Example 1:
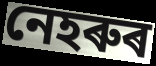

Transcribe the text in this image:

নেহৰুৰ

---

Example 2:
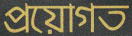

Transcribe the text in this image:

প্ৰয়োগত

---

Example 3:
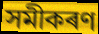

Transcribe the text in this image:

সমীকৰণ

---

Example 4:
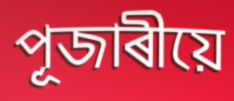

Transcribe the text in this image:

পূজাৰীয়ে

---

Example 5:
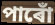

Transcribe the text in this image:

পাৰোঁ